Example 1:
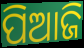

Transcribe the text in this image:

ପିଆଜି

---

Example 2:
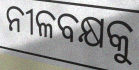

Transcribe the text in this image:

ନୀଳବକ୍ଷକୁ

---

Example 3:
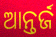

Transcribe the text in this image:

ଆନ୍ତର୍ଜ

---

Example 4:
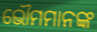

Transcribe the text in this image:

ଭୌମମାନଙ୍କ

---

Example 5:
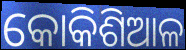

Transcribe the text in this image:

କୋକିଶିଆଳ